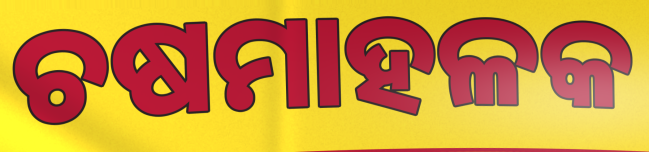
ଚଷମାହଳକ